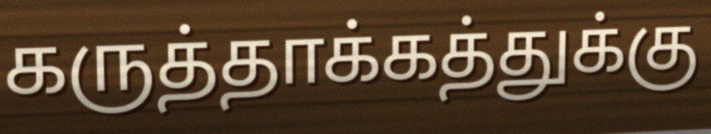
கருத்தாக்கத்துக்கு